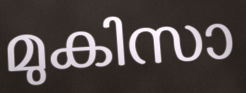
മുകിസാ